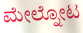
ಮೇಲ್ನೋಟ